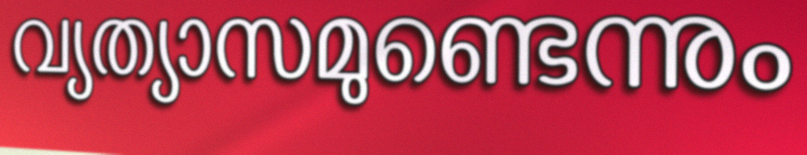
വ്യത്യാസമുണ്ടെന്നും